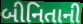
બીનિતાની